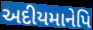
અદીયમાનેપિ